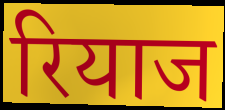
रियाज